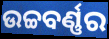
ଉଚ୍ଚବର୍ଣ୍ଣର